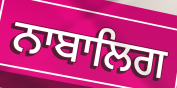
ਨਾਬਾਲਿਗ